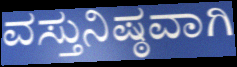
ವಸ್ತುನಿಷ್ಠವಾಗಿ